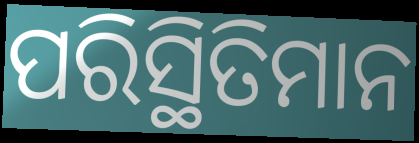
ପରିସ୍ଥିତିମାନ